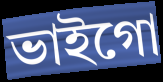
ভাইগো